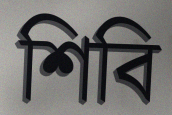
শিবি